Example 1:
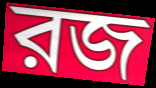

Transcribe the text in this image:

রজ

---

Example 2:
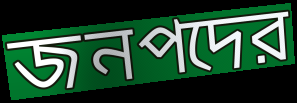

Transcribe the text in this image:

জনপদের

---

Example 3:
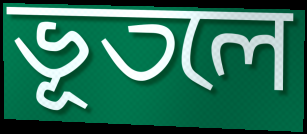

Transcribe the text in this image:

ভূতলে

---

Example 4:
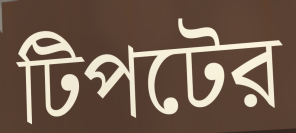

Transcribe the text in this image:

টিপটের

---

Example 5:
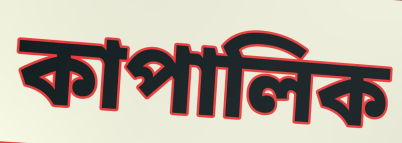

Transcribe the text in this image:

কাপালিক